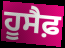
ਹੂਸੈਫ਼